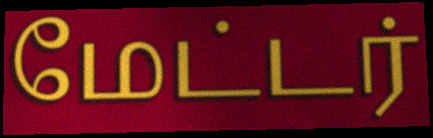
மேட்டர்